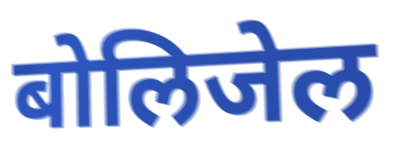
बोलिजेल